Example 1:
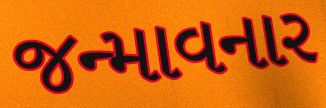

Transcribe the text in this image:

જન્માવનાર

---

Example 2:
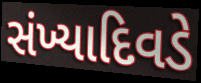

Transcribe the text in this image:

સંખ્યાદિવડે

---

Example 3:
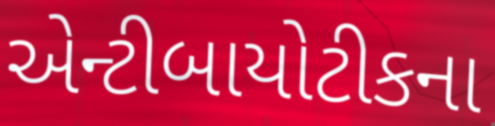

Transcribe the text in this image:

એન્ટીબાયોટીકના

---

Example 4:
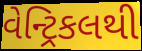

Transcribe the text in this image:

વેન્ટ્રિકલથી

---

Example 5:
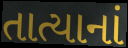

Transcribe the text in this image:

તાત્યાનાં